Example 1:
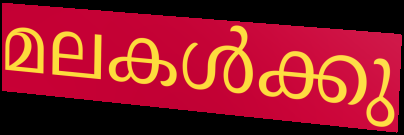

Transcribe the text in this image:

മലകൾക്കു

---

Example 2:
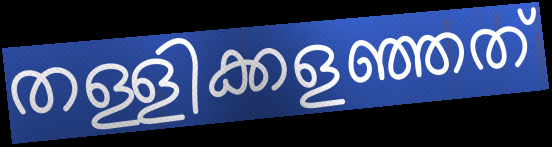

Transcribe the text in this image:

തള്ളിക്കളഞ്ഞത്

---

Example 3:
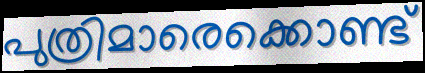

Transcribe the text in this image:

പുത്രിമാരെക്കൊണ്ട്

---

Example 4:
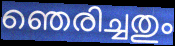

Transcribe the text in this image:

ഞെരിച്ചതും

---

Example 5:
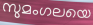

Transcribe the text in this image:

സുമംഗലയെ